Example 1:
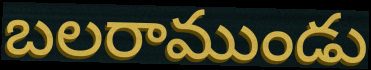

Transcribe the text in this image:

బలరాముండు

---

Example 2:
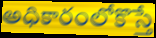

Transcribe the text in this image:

అధికారంలోకొస్తే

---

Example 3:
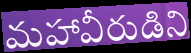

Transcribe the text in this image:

మహావీరుడిని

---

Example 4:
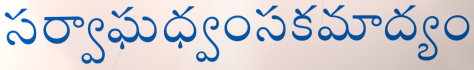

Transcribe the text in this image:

సర్వాఘధ్వంసకమాద్యం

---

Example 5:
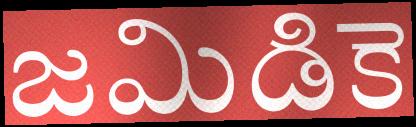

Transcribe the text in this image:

జమిడికె